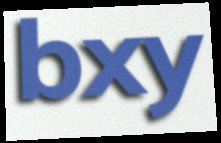
bxy